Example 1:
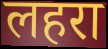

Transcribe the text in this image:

लहरा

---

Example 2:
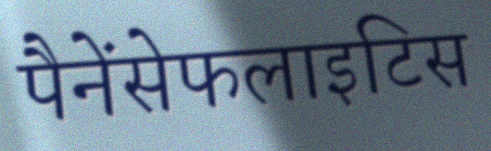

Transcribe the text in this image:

पैनेंसेफलाइटिस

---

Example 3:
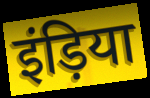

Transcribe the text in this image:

इंड़िया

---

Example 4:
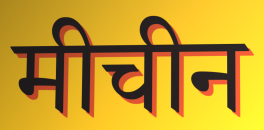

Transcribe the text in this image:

मीचीन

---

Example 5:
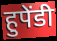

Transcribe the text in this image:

हुपेंडी